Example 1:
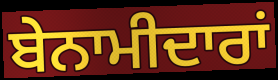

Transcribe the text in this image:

ਬੇਨਾਮੀਦਾਰਾਂ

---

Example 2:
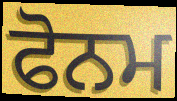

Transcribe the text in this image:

ਫੋਨਮ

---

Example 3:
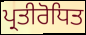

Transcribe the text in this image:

ਪ੍ਰਤੀਰੋਧਿਤ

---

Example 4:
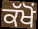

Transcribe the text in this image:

ਕੱਖੋਂ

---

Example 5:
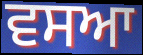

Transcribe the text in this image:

ਵਸਆ